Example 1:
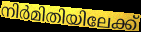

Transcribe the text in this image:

നിർമിതിയിലേക്ക്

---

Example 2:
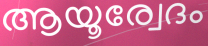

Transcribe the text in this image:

ആയൂര്വേദം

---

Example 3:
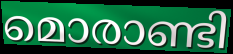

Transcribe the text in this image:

മൊരാണ്ടി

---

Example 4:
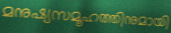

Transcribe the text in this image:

മനുഷ്യസമൂഹത്തിനുമായി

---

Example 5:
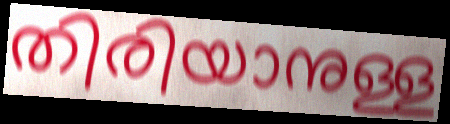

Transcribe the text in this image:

തിരിയാനുള്ള